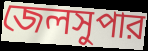
জেলসুপার